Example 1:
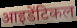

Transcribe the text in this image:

आइडेंटिकल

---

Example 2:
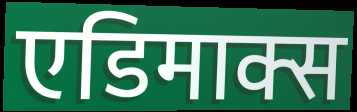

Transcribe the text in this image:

एडिमाक्स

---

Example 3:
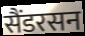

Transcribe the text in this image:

सैंडरसन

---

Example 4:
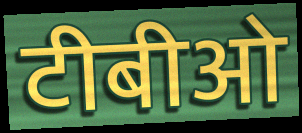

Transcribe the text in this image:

टीबीओ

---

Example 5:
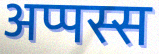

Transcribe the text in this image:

अप्पस्स